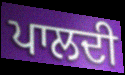
ਪਾਲਦੀ